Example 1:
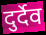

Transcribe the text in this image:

दुर्देव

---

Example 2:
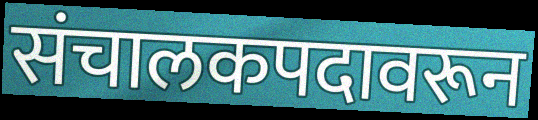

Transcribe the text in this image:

संचालकपदावरून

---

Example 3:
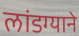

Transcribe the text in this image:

लांडग्याने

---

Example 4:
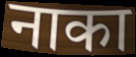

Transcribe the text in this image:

नाका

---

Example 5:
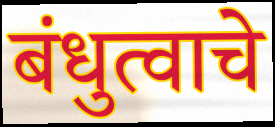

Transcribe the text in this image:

बंधुत्वाचे